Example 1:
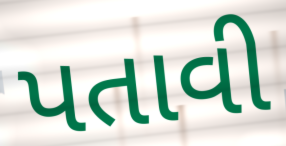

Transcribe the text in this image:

પતાવી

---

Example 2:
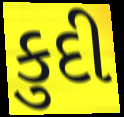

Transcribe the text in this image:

કુદી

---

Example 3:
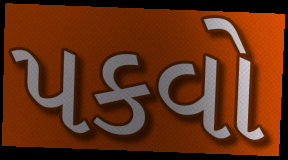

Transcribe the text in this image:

પકવો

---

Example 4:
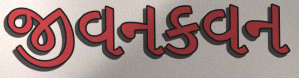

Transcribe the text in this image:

જીવનકવન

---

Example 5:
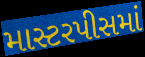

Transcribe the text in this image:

માસ્ટરપીસમાં